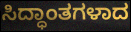
ಸಿದ್ಧಾಂತಗಳಾದ